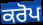
ਕਰੋਪ